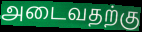
அடைவதற்கு